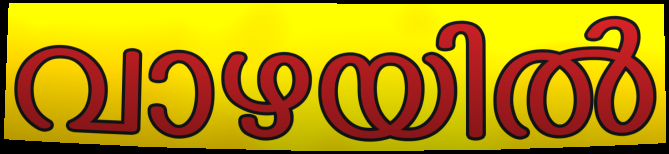
വാഴയിൽ